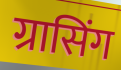
ग्रासिंग